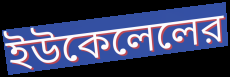
ইউকেলেলের